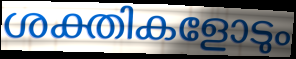
ശക്തികളോടും